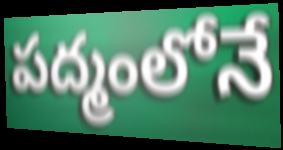
పద్మంలోనే